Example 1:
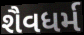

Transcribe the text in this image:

શૈવધર્મ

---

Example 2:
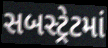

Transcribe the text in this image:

સબસ્ટ્રેટમાં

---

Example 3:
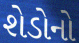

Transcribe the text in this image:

શેડોનો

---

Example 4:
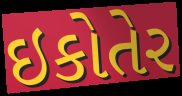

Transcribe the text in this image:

ઇકોતેર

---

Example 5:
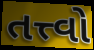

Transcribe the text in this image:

તત્ત્વો